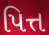
પિત્ત